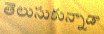
తెలుసుకున్నాడా